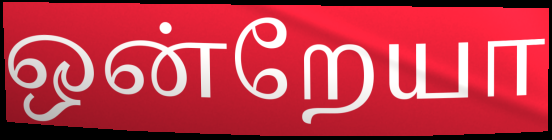
ஒன்றேயா